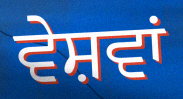
ਵੇਸ਼ਵਾਂ